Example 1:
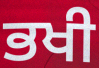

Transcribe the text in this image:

ਭਖੀ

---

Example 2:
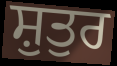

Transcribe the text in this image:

ਸ਼ੁਤੁਰ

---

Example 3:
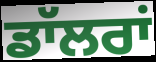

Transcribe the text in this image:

ਡਾੱਲਰਾਂ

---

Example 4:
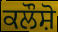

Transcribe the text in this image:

ਕਲੌਸ਼ੋ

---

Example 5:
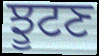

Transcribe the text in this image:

ਝੂਟਣ